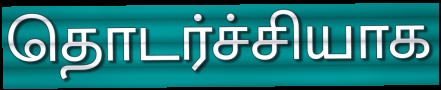
தொடர்ச்சியாக